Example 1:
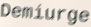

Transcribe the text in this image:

Demiurge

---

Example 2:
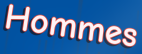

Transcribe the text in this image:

Hommes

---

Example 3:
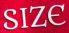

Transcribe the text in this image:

SIZE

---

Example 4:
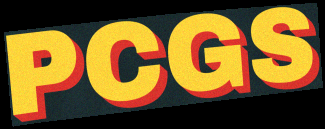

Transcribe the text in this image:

PCGS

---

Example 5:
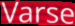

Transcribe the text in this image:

Varse